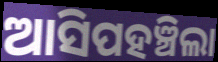
ଆସିପହଞ୍ଚିଲା